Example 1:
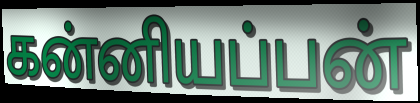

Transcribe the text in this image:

கன்னியப்பன்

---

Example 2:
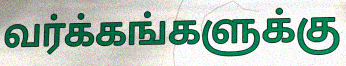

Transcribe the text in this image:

வர்க்கங்களுக்கு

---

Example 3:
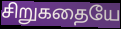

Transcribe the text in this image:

சிறுகதையே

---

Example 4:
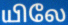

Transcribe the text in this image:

யிலே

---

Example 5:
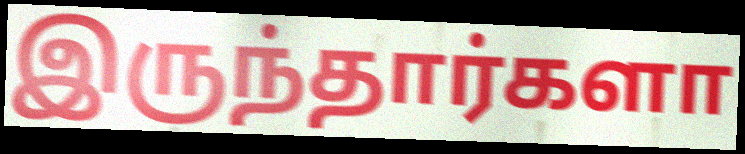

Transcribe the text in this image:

இருந்தார்களா